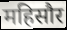
महिसौर